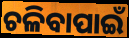
ଚଳିବାପାଇଁ